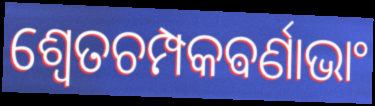
ଶ୍ଵେତଚମ୍ପକଵର୍ଣାଭାଂ